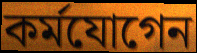
কর্মযোগেন